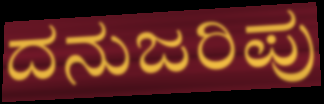
ದನುಜರಿಪು